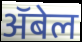
ॲबेल